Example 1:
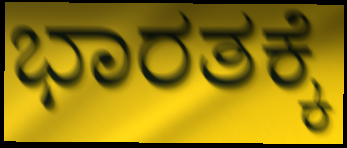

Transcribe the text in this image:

ಭಾರತಕ್ಕೆ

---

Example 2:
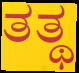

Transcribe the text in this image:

ತತ್ಥ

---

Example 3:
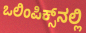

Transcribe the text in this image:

ಒಲಿಂಪಿಕ್ಸ್‌ನಲ್ಲಿ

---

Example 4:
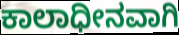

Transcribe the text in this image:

ಕಾಲಾಧೀನವಾಗಿ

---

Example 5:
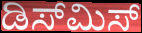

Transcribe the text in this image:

ಡಿಸ್‌ಮಿಸ್